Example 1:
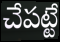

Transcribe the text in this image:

చేపట్టే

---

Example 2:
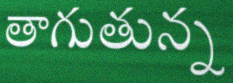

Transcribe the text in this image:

తాగుతున్న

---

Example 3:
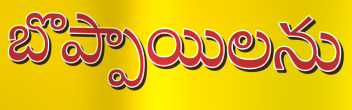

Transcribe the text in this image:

బొప్పాయిలను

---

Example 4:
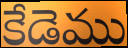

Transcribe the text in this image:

కేడెము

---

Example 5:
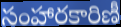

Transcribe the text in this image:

సంహారకారిణీ